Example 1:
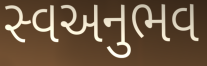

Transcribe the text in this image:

સ્વઅનુભવ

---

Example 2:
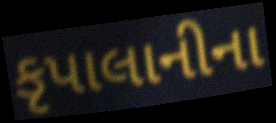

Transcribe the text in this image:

કૃપાલાનીના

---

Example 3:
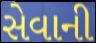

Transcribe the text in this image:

સેવાની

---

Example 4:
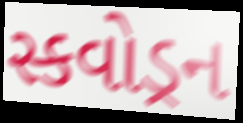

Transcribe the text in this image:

સ્કવોડ્રન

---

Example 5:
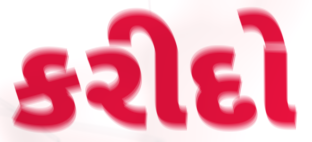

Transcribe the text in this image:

કરીદો